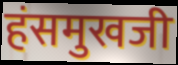
हंसमुखजी